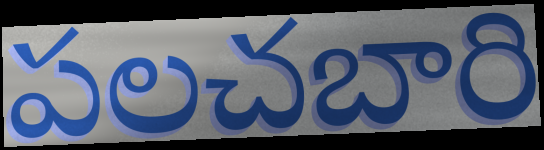
పలచబారి